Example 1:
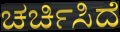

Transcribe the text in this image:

ಚರ್ಚಿಸಿದೆ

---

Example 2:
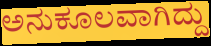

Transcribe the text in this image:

ಅನುಕೂಲವಾಗಿದ್ದು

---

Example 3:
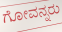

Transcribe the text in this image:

ಗೋವನ್ನರು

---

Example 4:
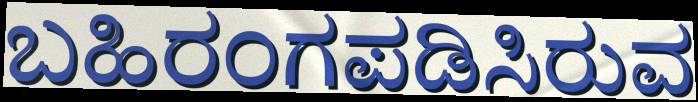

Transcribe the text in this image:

ಬಹಿರಂಗಪಡಿಸಿರುವ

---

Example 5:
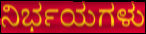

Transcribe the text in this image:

ನಿರ್ಭಯಗಳು